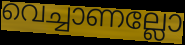
വെച്ചാണല്ലോ